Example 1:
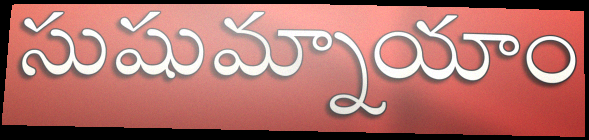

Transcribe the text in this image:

సుషుమ్నాయాం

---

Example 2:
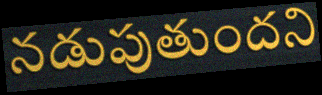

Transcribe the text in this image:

నడుపుతుందని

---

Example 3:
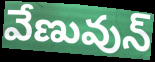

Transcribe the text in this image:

వేణువున్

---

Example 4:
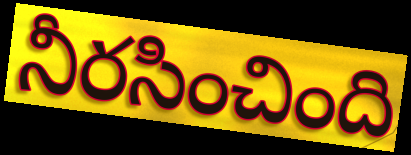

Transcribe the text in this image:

నీరసించింది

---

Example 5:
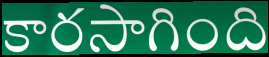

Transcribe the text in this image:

కారసాగింది